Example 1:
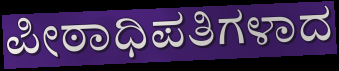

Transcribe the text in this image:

ಪೀಠಾಧಿಪತಿಗಳಾದ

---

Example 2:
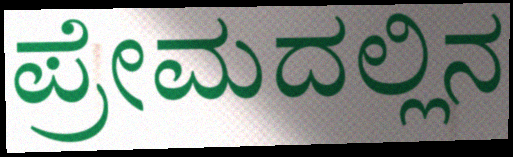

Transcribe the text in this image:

ಪ್ರೇಮದಲ್ಲಿನ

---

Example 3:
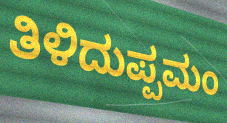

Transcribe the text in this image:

ತಿಳಿದುಪ್ಪಮಂ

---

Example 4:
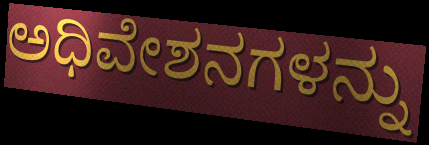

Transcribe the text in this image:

ಅಧಿವೇಶನಗಳನ್ನು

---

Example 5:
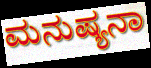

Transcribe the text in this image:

ಮನುಷ್ಯನಾ